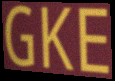
GKE